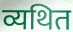
व्यथित